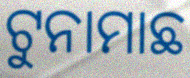
ଟୁନାମାଛ